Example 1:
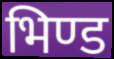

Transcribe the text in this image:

भिण्‍ड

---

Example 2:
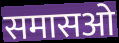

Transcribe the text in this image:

समासओ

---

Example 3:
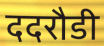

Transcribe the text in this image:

ददरौडी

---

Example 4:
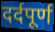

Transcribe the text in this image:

दर्दपूर्ण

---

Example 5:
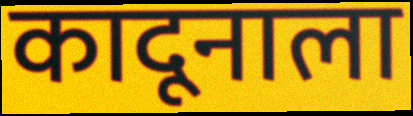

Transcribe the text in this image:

कादूनाला